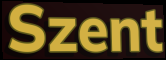
Szent